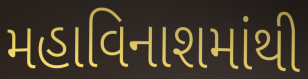
મહાવિનાશમાંથી